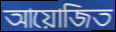
আয়োজিত